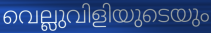
വെല്ലുവിളിയുടെയും